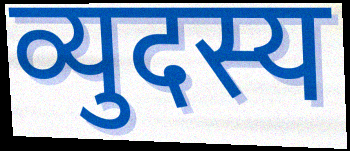
व्युदस्य